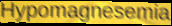
Hypomagnesemia